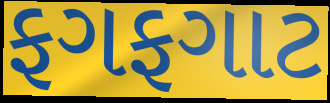
ફગફગાટ